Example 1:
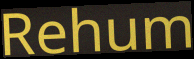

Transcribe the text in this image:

Rehum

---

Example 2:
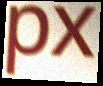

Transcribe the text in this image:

px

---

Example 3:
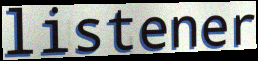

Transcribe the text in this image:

listener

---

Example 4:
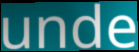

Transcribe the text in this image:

unde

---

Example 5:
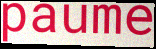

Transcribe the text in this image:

paume